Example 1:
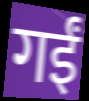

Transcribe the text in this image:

गईं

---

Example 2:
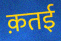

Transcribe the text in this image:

क़तई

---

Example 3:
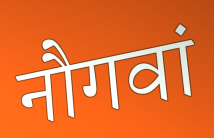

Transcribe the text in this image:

नौगवां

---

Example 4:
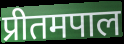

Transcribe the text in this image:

प्रीतमपाल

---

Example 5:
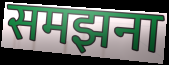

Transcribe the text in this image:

समझना